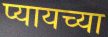
प्यायच्या